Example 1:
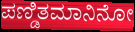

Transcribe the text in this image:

ಪಣ್ಡಿತಮಾನಿನೋ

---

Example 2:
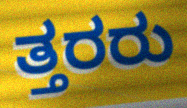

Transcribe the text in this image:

ತ್ತರರು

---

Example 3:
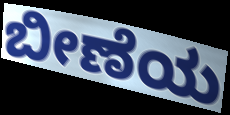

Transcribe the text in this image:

ಬೀಣೆಯ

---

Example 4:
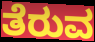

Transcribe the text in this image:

ತೆರುವ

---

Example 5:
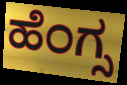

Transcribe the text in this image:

ಹೆಂಗ್ಸ